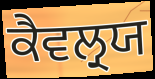
ਕੈਵਲ੍ਰਯ